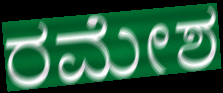
ರಮೇಶ